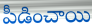
పీడించాయి